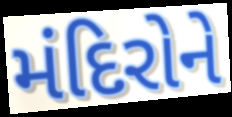
મંદિરોને